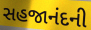
સહજાનંદની